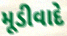
મૂડીવાદે